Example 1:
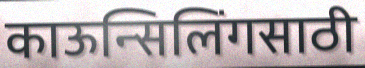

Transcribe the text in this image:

काऊन्सिलिंगसाठी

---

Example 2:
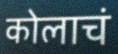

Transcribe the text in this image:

कोलाचं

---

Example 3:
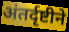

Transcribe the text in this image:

अंतर्दृष्टीने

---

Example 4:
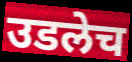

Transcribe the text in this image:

उडलेच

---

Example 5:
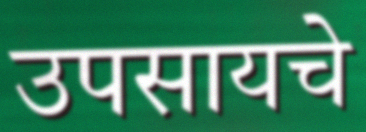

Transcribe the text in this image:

उपसायचे